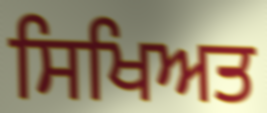
ਸਿਖਿਅਤ